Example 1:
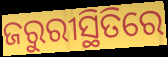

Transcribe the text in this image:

ଜରୁରୀସ୍ଥିତିରେ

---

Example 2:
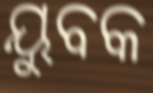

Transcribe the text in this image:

ୟୁବକ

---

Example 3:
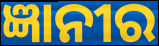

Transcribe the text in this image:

ଜ୍ଞାନୀର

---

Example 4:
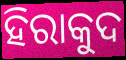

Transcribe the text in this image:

ହିରାକୁଦ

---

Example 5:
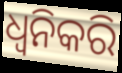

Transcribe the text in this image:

ଧ୍ୱନିକରି